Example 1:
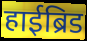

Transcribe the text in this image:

हाईब्रिड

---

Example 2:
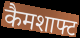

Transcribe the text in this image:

कैमशाफ्ट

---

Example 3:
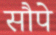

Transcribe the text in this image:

सौपे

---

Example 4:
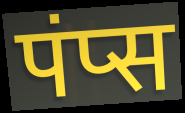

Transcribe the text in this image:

पंप्स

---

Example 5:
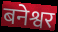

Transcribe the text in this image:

बनेश्वर